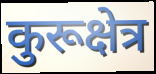
कुरूक्षेत्र